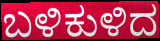
ಬಳಿಕುಳಿದ